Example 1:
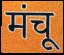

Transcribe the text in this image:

मंचू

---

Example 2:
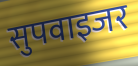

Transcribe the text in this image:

सुपवाइजर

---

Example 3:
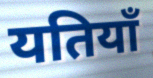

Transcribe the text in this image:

यतियाँ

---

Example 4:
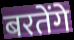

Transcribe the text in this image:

बरतेंगे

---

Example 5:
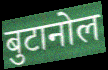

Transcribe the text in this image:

बुटानोल